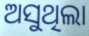
ଅସୁଥିଲା